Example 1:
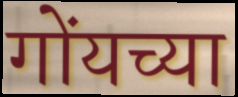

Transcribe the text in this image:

गोंयच्या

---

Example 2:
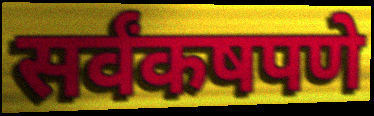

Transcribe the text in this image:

सर्वंकषपणे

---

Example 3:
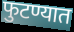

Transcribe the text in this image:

फुटण्यात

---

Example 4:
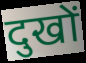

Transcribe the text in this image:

दुखों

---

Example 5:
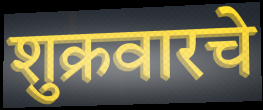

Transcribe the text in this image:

शुक्रवारचे